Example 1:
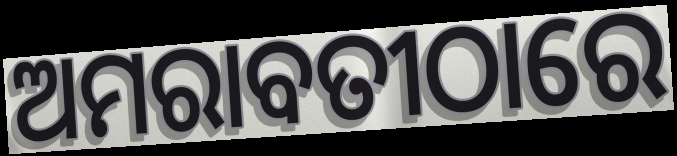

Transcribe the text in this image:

ଅମରାବତୀଠାରେ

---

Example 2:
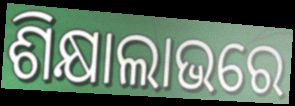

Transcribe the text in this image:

ଶିକ୍ଷାଲାଭରେ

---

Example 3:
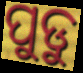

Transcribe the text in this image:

ପୁଡୁ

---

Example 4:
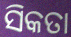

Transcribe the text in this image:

ସିକତା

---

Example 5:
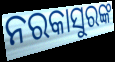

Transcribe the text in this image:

ନରକାସୁରଙ୍କ